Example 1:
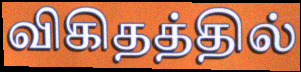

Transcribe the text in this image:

விகிதத்தில்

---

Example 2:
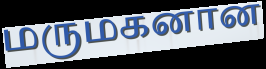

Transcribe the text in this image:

மருமகனான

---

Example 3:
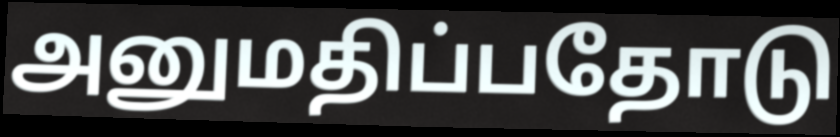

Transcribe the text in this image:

அனுமதிப்பதோடு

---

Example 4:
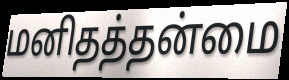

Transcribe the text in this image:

மனிதத்தன்மை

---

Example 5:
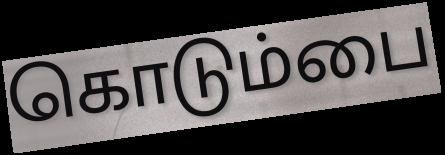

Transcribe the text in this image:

கொடும்பை